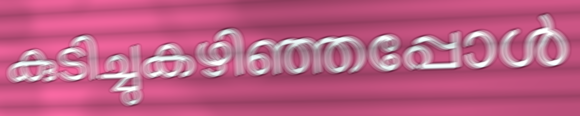
കുടിച്ചുകഴിഞ്ഞപ്പോൾ